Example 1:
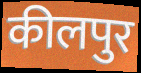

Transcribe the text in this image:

कीलपुर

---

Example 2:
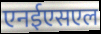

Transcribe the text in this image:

एनईएसएल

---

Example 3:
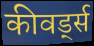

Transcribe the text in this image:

कीवर्ड्स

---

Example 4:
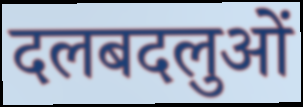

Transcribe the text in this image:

दलबदलुओं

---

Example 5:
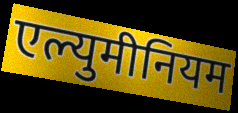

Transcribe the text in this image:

एल्युमीनियम